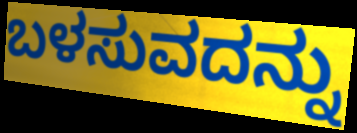
ಬಳಸುವದನ್ನು